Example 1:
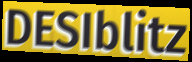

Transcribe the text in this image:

DESIblitz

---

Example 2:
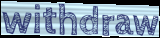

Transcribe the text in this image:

withdraw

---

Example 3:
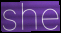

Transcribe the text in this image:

she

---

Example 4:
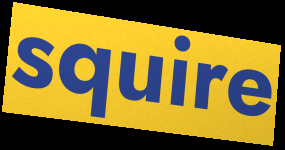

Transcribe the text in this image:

squire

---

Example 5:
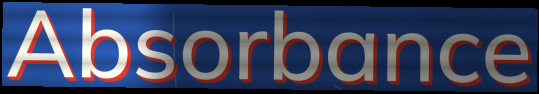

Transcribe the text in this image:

Absorbance